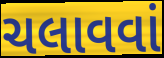
ચલાવવાં